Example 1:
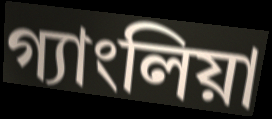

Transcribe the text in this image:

গ্যাংলিয়া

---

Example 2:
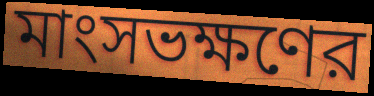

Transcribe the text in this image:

মাংসভক্ষণের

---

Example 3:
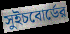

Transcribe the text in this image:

সুইচবোর্ডের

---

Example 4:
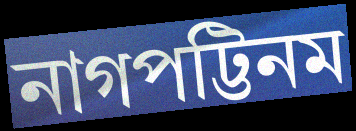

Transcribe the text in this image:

নাগপট্টিনম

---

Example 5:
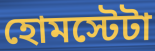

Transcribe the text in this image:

হোমস্টেটা